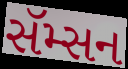
સૅમ્સન